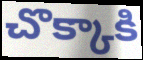
చొక్కాకి